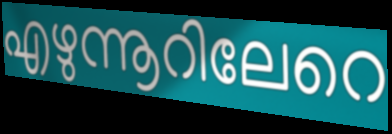
എഴുന്നൂറിലേറെ